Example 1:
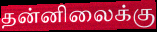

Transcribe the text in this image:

தன்னிலைக்கு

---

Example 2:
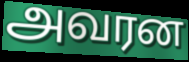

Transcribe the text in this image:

அவரன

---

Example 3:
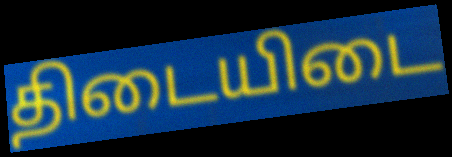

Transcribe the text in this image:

திடையிடை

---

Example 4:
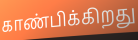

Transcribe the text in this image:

காண்பிக்கிறது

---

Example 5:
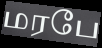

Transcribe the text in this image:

மரபே